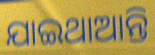
ଯାଇଥାଆନ୍ତି